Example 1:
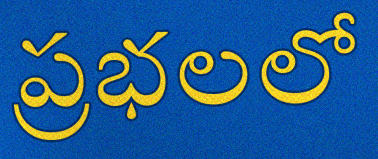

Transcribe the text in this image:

ప్రభలలో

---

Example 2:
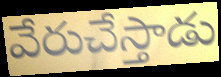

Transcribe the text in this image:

వేరుచేస్తాడు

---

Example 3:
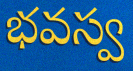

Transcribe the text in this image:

భవస్వ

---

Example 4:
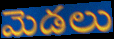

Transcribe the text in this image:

మెడలు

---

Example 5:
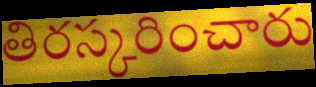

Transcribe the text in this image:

తిరస్కరించారు